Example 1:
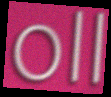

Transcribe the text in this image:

oll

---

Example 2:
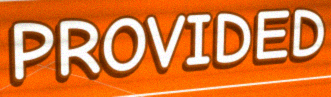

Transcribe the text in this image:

PROVIDED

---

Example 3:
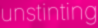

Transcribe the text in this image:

unstinting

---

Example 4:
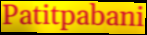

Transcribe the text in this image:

Patitpabani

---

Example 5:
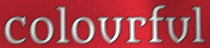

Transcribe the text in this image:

colourful